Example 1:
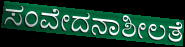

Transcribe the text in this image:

ಸಂವೇದನಾಶೀಲತೆ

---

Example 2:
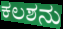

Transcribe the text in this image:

ಕಲಶನು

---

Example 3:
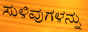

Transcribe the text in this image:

ಸುಳಿವುಗಳನ್ನು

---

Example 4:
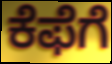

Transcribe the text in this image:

ಕೆಫೆಗೆ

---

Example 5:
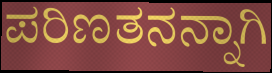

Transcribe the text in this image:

ಪರಿಣತನನ್ನಾಗಿ